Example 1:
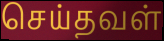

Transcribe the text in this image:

செய்தவள்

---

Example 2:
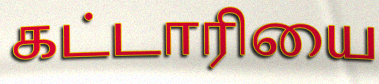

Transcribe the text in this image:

கட்டாரியை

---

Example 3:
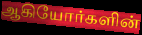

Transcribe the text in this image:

ஆகியோர்களின்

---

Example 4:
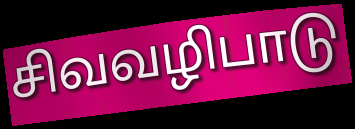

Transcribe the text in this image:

சிவவழிபாடு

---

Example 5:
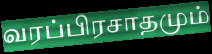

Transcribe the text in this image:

வரப்பிரசாதமும்